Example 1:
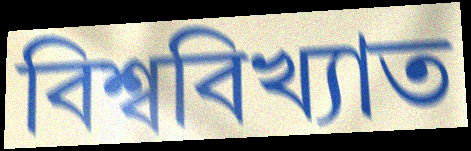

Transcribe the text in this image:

বিশ্ববিখ্যাত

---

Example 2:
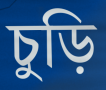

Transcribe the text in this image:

চুড়ি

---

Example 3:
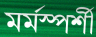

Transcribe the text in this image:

মৰ্মস্পৰ্শী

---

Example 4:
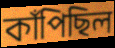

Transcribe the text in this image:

কাঁপিছিল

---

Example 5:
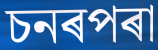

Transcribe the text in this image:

চনৰপৰা